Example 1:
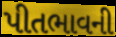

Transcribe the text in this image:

પીતભાવની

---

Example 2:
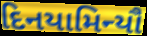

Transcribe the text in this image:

દિનયામિન્યૌ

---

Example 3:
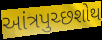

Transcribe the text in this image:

આંત્રપુચ્છશોથ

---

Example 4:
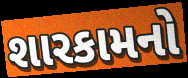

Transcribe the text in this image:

શારકામનો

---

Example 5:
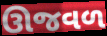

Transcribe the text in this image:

ઊજવળ